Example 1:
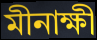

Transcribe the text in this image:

মীনাক্ষী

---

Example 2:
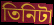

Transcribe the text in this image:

তিনিটা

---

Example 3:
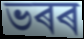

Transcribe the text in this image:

ভৰৰ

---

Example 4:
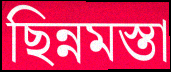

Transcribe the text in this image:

ছিন্নমস্তা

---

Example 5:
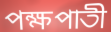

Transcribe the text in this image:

পক্ষপাতী